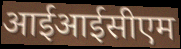
आईआईसीएम